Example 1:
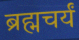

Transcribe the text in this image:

ब्रह्मचर्यं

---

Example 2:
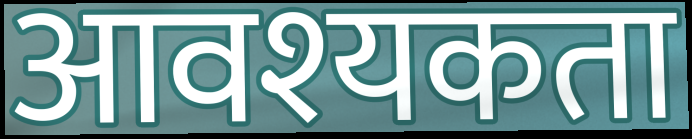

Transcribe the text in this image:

आवश्‍यकता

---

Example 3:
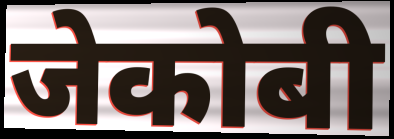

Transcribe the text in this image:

जेकोबी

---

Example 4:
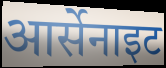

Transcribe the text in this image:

आर्सेनाइट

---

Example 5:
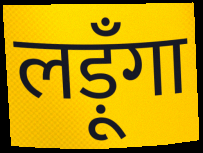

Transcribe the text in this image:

लड़ूँगा